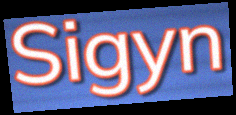
Sigyn